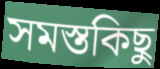
সমস্তকিছু